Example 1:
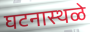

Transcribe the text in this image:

घटनास्थळे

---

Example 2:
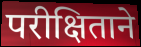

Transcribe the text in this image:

परीक्षिताने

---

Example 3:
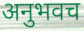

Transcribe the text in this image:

अनुभवच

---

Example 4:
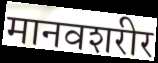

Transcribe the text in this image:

मानवशरीर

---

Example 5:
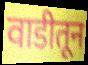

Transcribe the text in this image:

वाडीतून